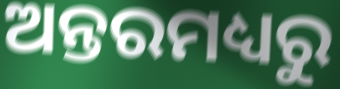
ଅନ୍ତରମଧ୍ୟରୁ